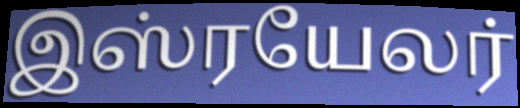
இஸ்ரயேலர்